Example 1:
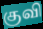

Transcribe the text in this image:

குவி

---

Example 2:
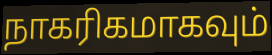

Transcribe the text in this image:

நாகரிகமாகவும்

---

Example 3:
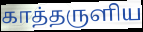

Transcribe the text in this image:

காத்தருளிய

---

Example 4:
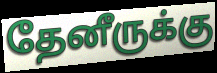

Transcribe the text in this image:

தேனீருக்கு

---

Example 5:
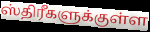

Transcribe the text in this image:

ஸ்திரீகளுக்குள்ள